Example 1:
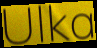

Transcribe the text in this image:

Ulka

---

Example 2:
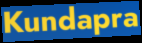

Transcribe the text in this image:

Kundapra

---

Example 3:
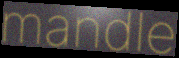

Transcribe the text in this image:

mandle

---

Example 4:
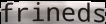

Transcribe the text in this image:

frineds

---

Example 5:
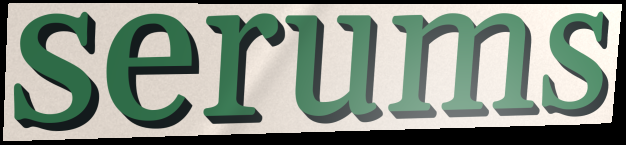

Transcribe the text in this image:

serums